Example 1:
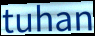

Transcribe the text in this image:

tuhan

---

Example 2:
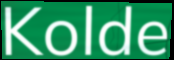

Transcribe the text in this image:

Kolde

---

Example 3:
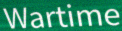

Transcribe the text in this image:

Wartime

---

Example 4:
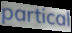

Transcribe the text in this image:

partical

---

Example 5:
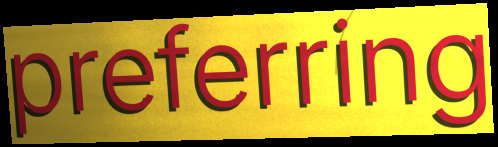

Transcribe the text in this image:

preferring